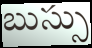
బుస్సు